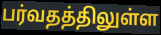
பர்வதத்திலுள்ள